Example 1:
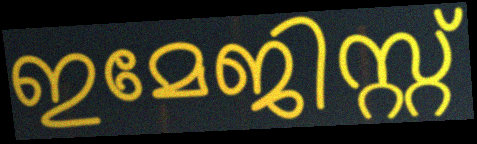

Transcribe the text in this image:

ഇമേജിസ്റ്റ്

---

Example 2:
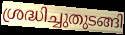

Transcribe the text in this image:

ശ്രദ്ധിച്ചുതുടങ്ങി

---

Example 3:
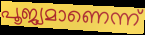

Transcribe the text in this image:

പൂജ്യമാണെന്ന്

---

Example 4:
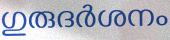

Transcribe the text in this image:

ഗുരുദർശനം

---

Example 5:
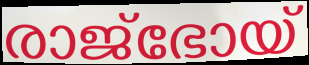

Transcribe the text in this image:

രാജ്ഭോയ്